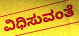
ವಿಧಿಸುವಂತೆ